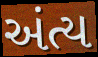
અંત્ય